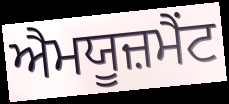
ਐਮਯੂਜ਼ਮੈਂਟ